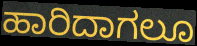
ಹಾರಿದಾಗಲೂ